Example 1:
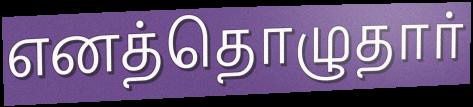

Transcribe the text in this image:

எனத்தொழுதார்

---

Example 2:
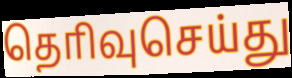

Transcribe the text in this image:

தெரிவுசெய்து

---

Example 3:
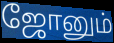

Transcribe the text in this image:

ஜோனும்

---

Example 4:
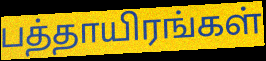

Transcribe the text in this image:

பத்தாயிரங்கள்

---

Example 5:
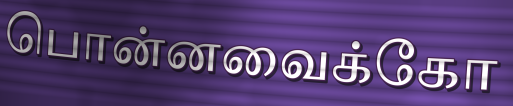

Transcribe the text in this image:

பொன்னவைக்கோ